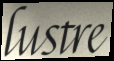
lustre